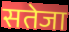
सतेजा